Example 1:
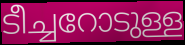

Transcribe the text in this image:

ടീച്ചറോടുള്ള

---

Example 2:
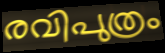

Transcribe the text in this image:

രവിപുത്രം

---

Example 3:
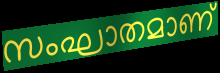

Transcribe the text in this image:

സംഘാതമാണ്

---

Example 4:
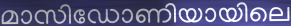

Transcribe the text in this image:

മാസിഡോണിയായിലെ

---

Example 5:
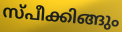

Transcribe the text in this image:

സ്പീക്കിങ്ങും